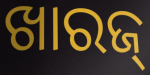
ଖାରଜ୍